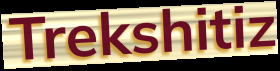
Trekshitiz